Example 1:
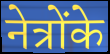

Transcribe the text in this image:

नेत्रोंके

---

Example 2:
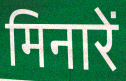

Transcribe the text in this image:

मिनारें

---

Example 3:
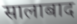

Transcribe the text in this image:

सालाबाद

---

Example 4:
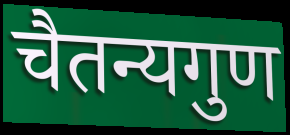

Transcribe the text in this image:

चैतन्यगुण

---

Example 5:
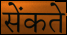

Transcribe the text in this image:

सेंकते